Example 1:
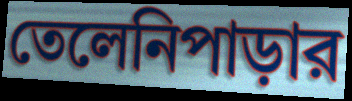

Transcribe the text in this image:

তেলেনিপাড়ার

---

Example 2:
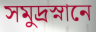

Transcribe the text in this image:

সমুদ্রস্নানে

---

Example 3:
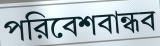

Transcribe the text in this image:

পরিবেশবান্ধব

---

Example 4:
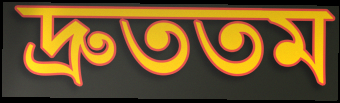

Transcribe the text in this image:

দ্রুততম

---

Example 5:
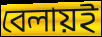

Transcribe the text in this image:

বেলায়ই